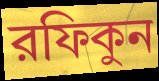
রফিকুন